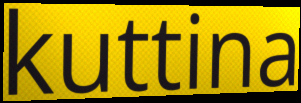
kuttina